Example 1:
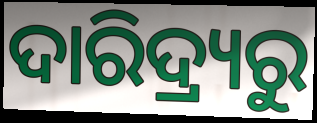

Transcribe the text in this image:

ଦାରିଦ୍ର୍ୟରୁ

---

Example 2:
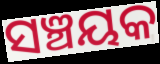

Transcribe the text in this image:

ସଞ୍ଚୟକ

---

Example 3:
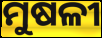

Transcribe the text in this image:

ମୁଷଳୀ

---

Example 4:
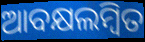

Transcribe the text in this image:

ଆବକ୍ଷଲମ୍ବିତ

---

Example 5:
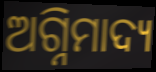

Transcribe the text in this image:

ଅଗ୍ନିମାଦ୍ୟ